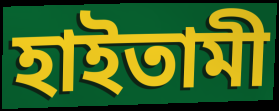
হাইতামী